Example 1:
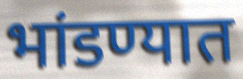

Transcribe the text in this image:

भांडण्यात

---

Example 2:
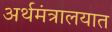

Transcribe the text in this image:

अर्थमंत्रालयात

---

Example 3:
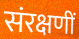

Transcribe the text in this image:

संरक्षणीं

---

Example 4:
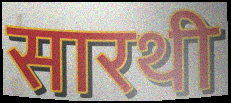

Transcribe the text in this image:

सारथी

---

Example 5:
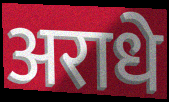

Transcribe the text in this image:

अराधे